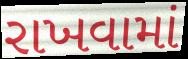
રાખવામાં